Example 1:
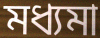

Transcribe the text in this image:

মধ্যমা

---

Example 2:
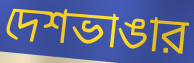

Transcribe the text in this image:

দেশভাঙার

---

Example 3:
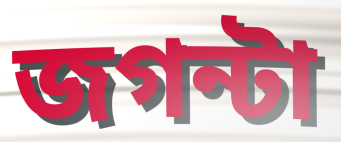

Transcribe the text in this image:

জগন্টা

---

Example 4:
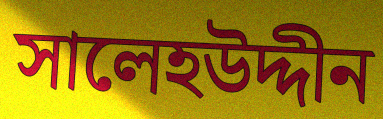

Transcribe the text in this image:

সালেহউদ্দীন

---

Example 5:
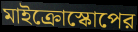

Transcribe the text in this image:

মাইক্রোস্কোপের